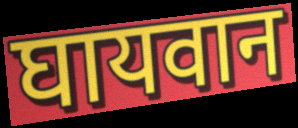
घायवान